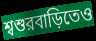
শ্বশুরবাড়িতেও